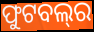
ଫୁଟବଲ୍‍ର